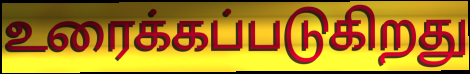
உரைக்கப்படுகிறது